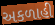
અકળાહી